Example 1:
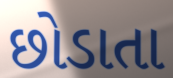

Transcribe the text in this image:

છોડાતા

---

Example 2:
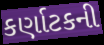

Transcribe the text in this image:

કર્ણાટકની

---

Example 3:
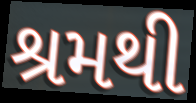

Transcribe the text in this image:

શ્રમથી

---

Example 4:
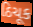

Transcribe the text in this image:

ઠિચૂક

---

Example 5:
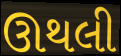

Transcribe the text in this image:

ઊથલી